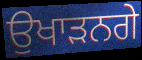
ਉਖਾੜਨਗੇ